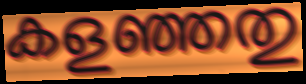
കളഞ്ഞതു